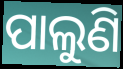
ପାଲୁଣି